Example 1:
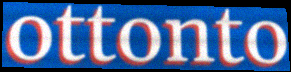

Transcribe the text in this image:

ottonto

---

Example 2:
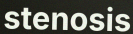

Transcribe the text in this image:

stenosis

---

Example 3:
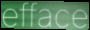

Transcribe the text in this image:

efface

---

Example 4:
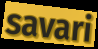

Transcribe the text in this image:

savari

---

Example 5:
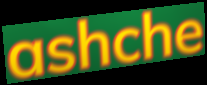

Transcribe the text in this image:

ashche